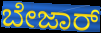
ಬೇಜಾರ್